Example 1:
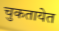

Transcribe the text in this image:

चुकतायेत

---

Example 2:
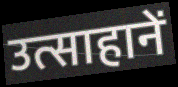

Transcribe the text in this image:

उत्साहानें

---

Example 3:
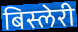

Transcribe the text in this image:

बिस्लेरी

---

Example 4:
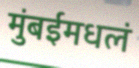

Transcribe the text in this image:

मुंबईमधलं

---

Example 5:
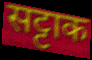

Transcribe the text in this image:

सट्टाक